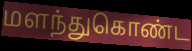
மளந்துகொண்ட